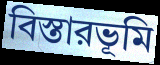
বিস্তারভূমি